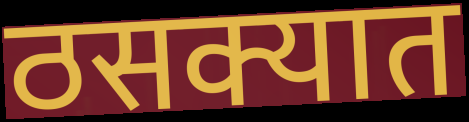
ठसक्यात